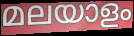
മലയാളം